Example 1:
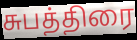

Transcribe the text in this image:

சுபத்திரை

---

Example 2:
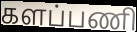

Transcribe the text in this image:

களப்பணி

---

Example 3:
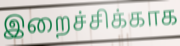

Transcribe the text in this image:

இறைச்சிக்காக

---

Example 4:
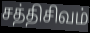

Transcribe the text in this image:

சத்திசிவம்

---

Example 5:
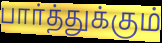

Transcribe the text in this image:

பார்த்துக்கும்